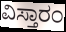
ವಿಸ್ತಾರಂ